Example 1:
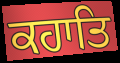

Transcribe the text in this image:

ਕਹਾਤਿ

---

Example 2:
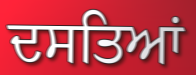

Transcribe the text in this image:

ਦਸਤਿਆਂ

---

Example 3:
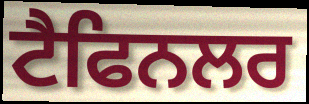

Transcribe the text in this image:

ਟੈਫਿਨਲਰ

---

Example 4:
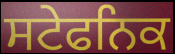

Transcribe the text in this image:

ਸਟੇਫਨਿਕ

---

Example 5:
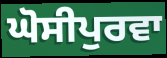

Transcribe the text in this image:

ਘੋਸੀਪੁਰਵਾ